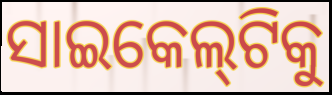
ସାଇକେଲ୍‌ଟିକୁ